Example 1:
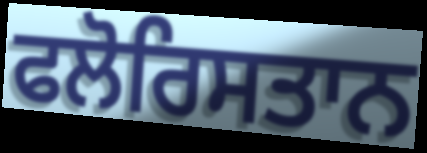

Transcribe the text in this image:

ਫਲੋਰਿਸਤਾਨ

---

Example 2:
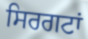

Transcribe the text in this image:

ਸਿਰਗਟਾਂ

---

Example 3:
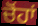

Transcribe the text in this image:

ਚੋਂਹਾਂ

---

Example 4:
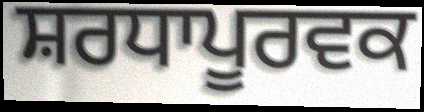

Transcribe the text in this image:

ਸ਼ਰਧਾਪੂਰਵਕ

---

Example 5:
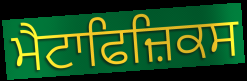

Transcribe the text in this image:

ਮੈਟਾਫਿਜ਼ਿਕਸ